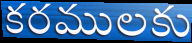
కరములకు